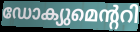
ഡോക്യുമെന്ററി